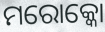
ମରୋକ୍କୋ